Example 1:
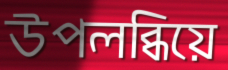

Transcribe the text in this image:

উপলব্ধিয়ে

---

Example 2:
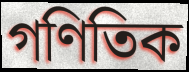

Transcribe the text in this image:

গণিতিক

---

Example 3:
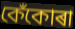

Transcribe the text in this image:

কেঁকোৰা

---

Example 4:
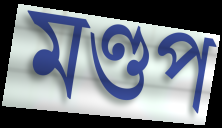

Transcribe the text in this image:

মণ্ডপ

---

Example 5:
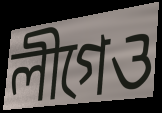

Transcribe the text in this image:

লীগেও